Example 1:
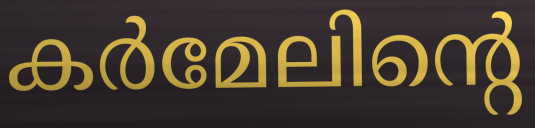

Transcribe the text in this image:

കർമേലിന്റെ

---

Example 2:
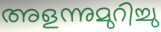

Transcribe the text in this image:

അളന്നുമുറിച്ചു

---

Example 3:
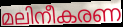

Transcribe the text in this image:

മലിനീകരണ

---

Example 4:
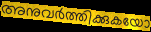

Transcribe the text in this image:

അനുവർത്തിക്കുകയോ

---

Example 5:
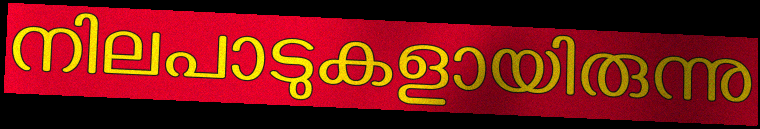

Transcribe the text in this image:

നിലപാടുകളായിരുന്നു